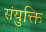
संयुक्ति